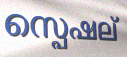
സ്പെഷല്